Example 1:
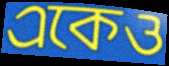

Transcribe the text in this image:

একেও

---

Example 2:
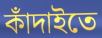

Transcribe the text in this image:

কাঁদাইতে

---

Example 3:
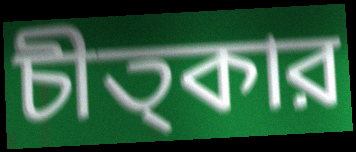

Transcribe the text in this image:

চীত্কার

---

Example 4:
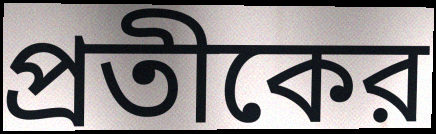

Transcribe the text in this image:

প্রতীকের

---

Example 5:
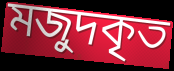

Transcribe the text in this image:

মজুদকৃত